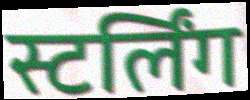
स्‍टर्लिंग